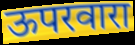
ऊपरवारा